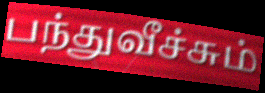
பந்துவீச்சும்